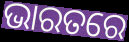
ଭାରତରେ